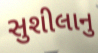
સુશીલાનુ